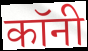
कॉनी